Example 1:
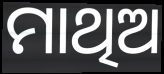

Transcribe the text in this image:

ମାଥିଅ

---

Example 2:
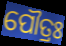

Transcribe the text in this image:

ପୌତ୍ରଃ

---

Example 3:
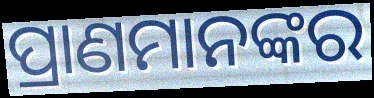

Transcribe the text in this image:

ପ୍ରାଣମାନଙ୍କର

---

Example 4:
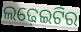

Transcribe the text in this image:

ଲଢ଼େଇଟିର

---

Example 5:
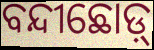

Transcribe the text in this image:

ବନ୍ଦୀଛୋଡ଼୍